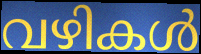
വഴികൾ